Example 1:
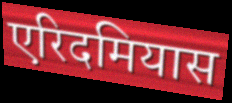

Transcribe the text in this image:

एरिदमियास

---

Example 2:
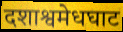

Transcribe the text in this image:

दशाश्वमेधघाट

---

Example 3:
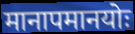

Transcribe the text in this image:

मानापमानयोः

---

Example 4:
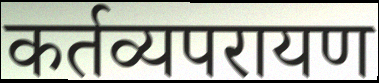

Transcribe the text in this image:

कर्तव्यपरायण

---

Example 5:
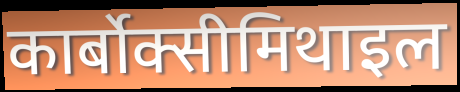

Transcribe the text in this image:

कार्बोक्सीमिथाइल